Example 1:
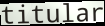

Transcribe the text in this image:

titular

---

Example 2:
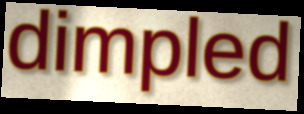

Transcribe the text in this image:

dimpled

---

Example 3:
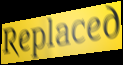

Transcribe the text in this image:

Replaced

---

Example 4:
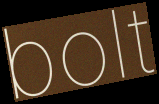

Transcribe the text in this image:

bolt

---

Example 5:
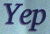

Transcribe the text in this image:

Yep